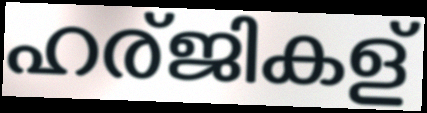
ഹര്ജികള്